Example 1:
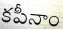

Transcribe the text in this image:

కపీనాం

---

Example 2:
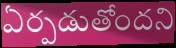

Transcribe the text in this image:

ఏర్పడుతోందని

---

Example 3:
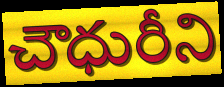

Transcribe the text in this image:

చౌధురీని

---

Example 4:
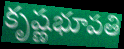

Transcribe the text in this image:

కృష్ణభూపతి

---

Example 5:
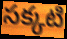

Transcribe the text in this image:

సక్కటి